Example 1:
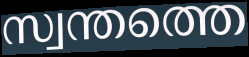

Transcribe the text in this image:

സ്വന്തത്തെ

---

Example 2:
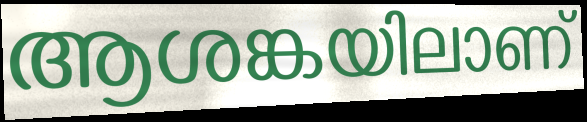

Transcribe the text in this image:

ആശങ്കയിലാണ്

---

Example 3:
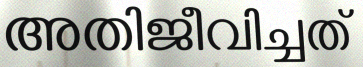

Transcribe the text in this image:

അതിജീവിച്ചത്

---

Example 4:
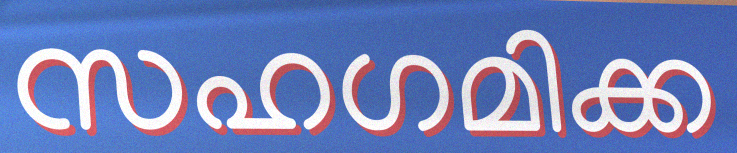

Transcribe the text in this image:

സഹഗമിക്ക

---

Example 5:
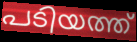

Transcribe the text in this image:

പടിയത്ത്